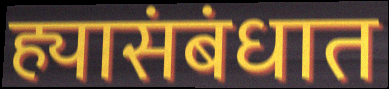
ह्यासंबंधात